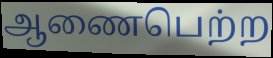
ஆணைபெற்ற